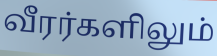
வீரர்களிலும்